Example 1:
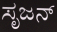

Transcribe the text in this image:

ಸೃಜನ್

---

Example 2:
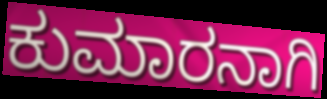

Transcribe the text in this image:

ಕುಮಾರನಾಗಿ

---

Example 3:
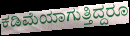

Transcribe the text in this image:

ಕಡಿಮೆಯಾಗುತ್ತಿದ್ದರೂ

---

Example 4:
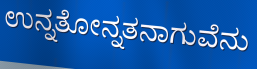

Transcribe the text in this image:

ಉನ್ನತೋನ್ನತನಾಗುವೆನು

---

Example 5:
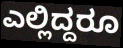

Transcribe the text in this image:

ಎಲ್ಲಿದ್ದರೂ